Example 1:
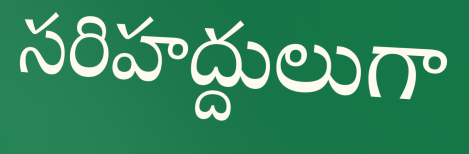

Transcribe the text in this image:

సరిహద్దులుగా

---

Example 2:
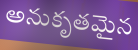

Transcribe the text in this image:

అనుకృతమైన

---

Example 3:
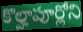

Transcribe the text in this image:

కొల్హాపూర్లోని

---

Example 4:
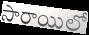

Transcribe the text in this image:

సారాయిలో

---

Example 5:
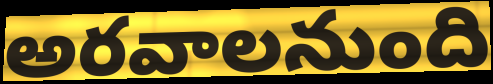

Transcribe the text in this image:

అరవాలనుంది